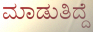
ಮಾಡುತಿದ್ದೆ